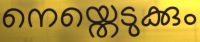
നെയ്തെടുക്കും